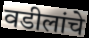
वडीलांचे